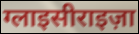
ग्लाइसीराइज़ा